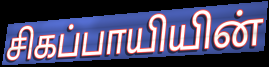
சிகப்பாயியின்